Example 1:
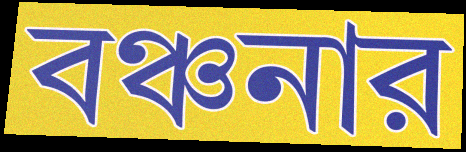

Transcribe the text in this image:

বঞ্চনার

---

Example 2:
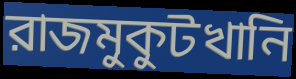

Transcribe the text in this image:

রাজমুকুটখানি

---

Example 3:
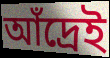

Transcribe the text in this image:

আঁদ্রেই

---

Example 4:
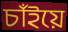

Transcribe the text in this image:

চাঁইয়ে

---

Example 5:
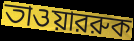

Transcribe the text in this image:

তাওয়াররুক